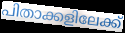
പിതാക്കളിലേക്ക്